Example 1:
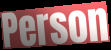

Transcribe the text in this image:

Person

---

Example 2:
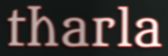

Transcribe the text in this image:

tharla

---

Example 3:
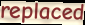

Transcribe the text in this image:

replaced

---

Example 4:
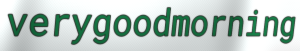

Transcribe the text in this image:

verygoodmorning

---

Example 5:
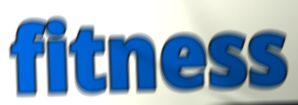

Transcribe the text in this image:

fitness